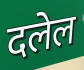
दलेल